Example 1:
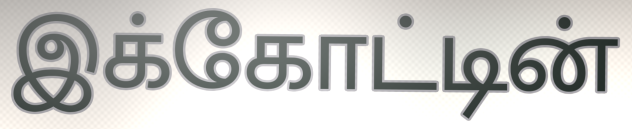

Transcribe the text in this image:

இக்கோட்டின்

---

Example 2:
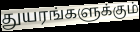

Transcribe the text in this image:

துயரங்களுக்கும்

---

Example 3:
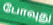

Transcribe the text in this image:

போவுது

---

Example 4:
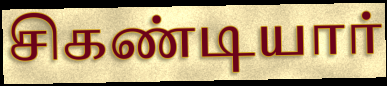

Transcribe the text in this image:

சிகண்டியார்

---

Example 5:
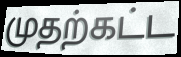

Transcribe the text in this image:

முதற்கட்ட